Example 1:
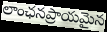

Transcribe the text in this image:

లాంఛనప్రాయమైన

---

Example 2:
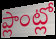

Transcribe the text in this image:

ప్లాంట్లో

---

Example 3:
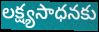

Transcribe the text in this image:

లక్ష్యసాధనకు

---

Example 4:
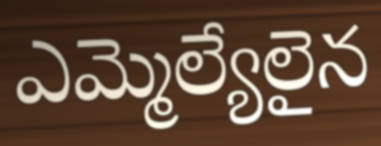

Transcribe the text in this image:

ఎమ్మెల్యేలైన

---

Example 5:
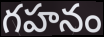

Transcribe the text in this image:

గహనం